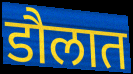
डौलात